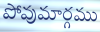
పోవుమార్గము